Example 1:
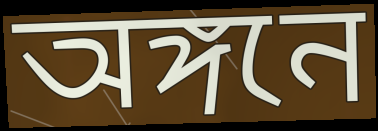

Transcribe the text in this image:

অঙ্গনে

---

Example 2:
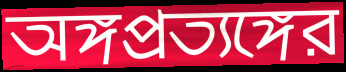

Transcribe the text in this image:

অঙ্গপ্রত্যঙ্গের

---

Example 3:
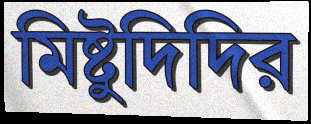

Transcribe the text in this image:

মিষ্টুদিদির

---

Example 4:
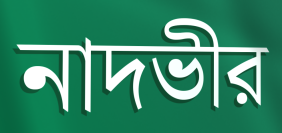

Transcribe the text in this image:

নাদভীর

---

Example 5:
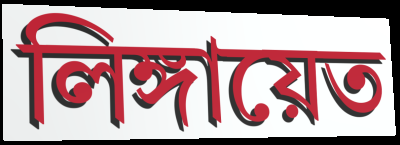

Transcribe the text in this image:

লিঙ্গায়েত